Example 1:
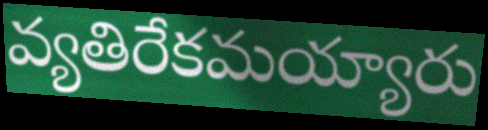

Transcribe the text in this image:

వ్యతిరేకమయ్యారు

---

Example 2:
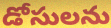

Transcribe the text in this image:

డోసులను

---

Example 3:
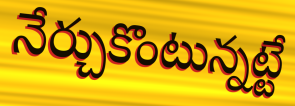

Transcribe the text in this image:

నేర్చుకొంటున్నట్టే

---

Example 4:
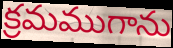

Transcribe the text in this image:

క్రమముగాను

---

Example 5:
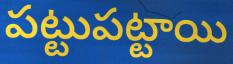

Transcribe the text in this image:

పట్టుపట్టాయి